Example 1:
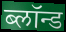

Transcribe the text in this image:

ब्लॉन्ड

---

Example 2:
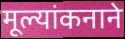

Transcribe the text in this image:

मूल्यांकनाने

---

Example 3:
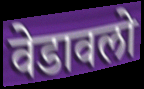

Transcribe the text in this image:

वेडावलो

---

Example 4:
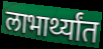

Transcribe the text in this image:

लाभार्थ्यांत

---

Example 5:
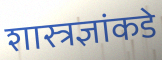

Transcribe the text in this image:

शास्त्रज्ञांकडे